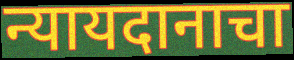
न्यायदानाचा